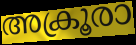
അക്രൂരാ